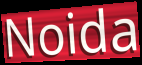
Noida